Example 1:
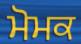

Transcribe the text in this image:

ਮੋਮਕ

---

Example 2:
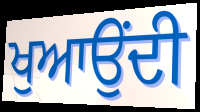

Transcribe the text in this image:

ਖੁਆਉਂਦੀ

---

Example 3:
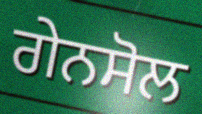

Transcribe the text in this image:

ਗੇਨਸੋਲ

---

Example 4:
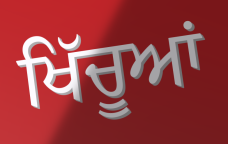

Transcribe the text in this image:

ਖਿੱਚੂਆਂ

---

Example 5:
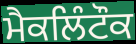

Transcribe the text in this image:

ਮੈਕਲਿੰਟੌਕ